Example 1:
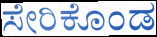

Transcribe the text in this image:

ಸೇರಿಕೊಂಡ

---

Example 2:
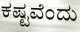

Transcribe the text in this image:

ಕಷ್ಟವೆಂದು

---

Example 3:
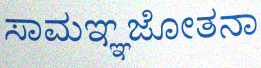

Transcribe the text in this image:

ಸಾಮಞ್ಞಜೋತನಾ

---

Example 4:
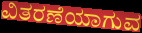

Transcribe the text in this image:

ವಿತರಣೆಯಾಗುವ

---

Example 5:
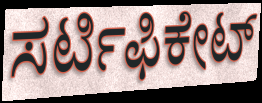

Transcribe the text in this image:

ಸರ್ಟಿಫಿಕೇಟ್